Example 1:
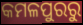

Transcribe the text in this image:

କମଳପୁରରୁ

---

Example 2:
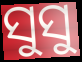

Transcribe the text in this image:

ସୁସୁ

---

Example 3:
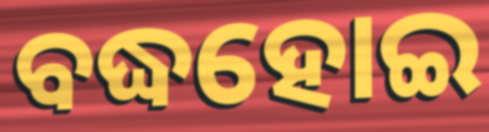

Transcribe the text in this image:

ବଦ୍ଧହୋଇ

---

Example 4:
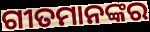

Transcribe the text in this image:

ଗୀତମାନଙ୍କର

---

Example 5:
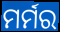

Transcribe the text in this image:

ମର୍ମର